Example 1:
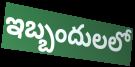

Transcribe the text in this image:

ఇబ్బందులలో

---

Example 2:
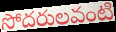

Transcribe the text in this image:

సోదరులవంటి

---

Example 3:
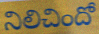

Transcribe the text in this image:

నిలిచిందో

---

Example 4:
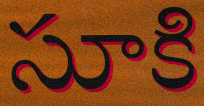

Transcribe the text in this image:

సూకి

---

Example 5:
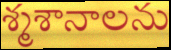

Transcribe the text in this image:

శ్మశానాలను